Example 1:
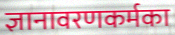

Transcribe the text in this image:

ज्ञानावरणकर्मका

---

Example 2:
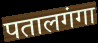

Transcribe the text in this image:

पतालगंगा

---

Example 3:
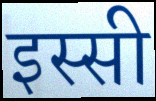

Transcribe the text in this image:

इस्सी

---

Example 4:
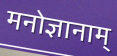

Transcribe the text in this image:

मनोज्ञानाम्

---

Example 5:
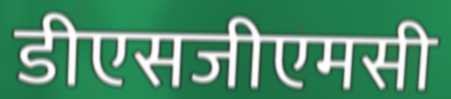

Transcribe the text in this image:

डीएसजीएमसी